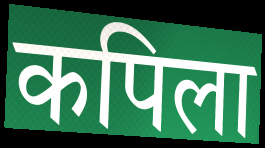
कपिला